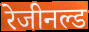
रेजीनल्ड